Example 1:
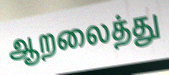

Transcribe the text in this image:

ஆறலைத்து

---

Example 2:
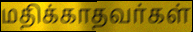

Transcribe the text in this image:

மதிக்காதவர்கள்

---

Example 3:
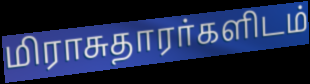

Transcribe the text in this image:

மிராசுதாரர்களிடம்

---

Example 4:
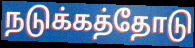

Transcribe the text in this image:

நடுக்கத்தோடு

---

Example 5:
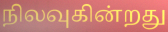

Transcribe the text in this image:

நிலவுகின்றது